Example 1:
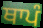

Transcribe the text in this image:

ਥਾਪੰ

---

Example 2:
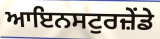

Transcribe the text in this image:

ਆਇਨਸਟੁਰਜ਼ੇਂਡੇ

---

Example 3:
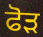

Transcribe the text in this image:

ਫੋਡ਼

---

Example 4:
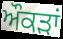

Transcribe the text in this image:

ਔਕਡ਼ਾਂ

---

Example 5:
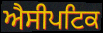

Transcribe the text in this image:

ਐਸੀਪਟਿਕ